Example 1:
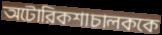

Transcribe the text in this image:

অটোরিকশাচালককে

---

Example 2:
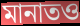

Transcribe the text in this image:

মানাতও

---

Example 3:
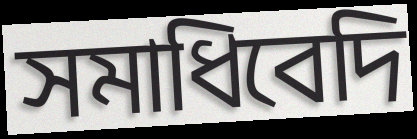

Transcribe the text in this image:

সমাধিবেদি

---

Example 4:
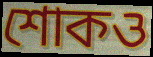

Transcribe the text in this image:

শোকও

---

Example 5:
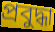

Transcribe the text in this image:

প্রবুদ্ধা